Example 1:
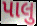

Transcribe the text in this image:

પાલુ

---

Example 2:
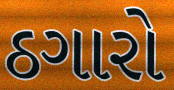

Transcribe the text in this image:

ઠગારો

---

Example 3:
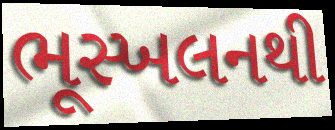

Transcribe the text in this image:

ભૂસ્ખલનથી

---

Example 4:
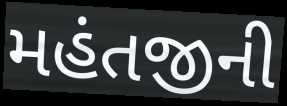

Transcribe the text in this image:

મહંતજીની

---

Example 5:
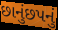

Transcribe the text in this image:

છાનુંછપનું